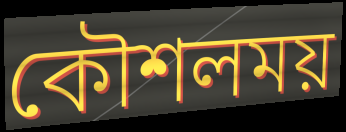
কৌশলময়